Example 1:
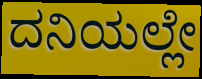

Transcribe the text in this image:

ದನಿಯಲ್ಲೇ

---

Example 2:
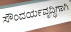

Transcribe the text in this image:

ಸೌಂದರ್ಯವೃದ್ಧಿಗಾಗಿ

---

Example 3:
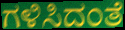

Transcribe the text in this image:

ಗಳಿಸಿದಂತೆ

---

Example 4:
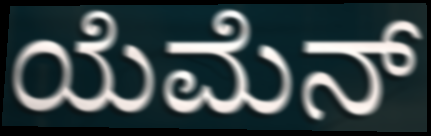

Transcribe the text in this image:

ಯೆಮೆನ್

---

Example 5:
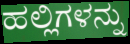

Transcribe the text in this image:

ಹಲ್ಲಿಗಳನ್ನು